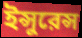
ইন্সুরেন্স